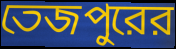
তেজপুরের